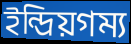
ইন্দ্রিয়গম্য